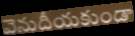
వెనుదీయకుండా